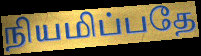
நியமிப்பதே